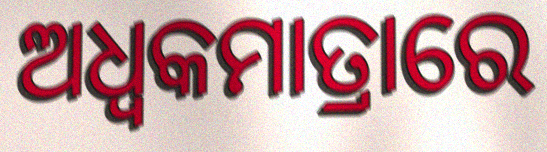
ଅଧ୍ଵକମାତ୍ରାରେ